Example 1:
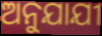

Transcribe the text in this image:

ଅନୁଯାଯୀ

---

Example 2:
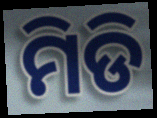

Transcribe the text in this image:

ମିଡି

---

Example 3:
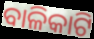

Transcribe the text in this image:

ବାଳିକାଟି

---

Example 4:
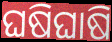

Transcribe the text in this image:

ଘଷିଘାଷି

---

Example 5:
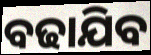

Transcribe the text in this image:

ବଢାଯିବ